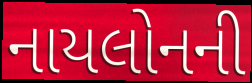
નાયલોનની